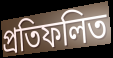
প্রতিফলিত